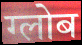
ग्लोब